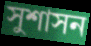
সুশাসন